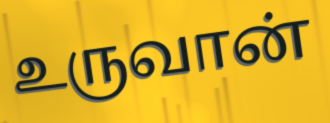
உருவான்